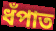
ধঁপাত